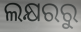
ଲକ୍ଷରରୁ